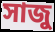
সাজু